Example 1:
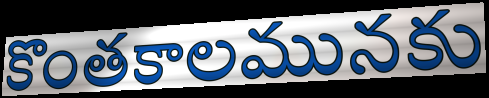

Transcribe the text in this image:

కొంతకాలమునకు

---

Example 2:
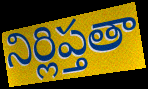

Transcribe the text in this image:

నిర్లిప్తతా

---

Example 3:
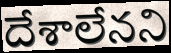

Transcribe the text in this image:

దేశాలేనని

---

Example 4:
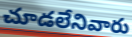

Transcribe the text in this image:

చూడలేనివారు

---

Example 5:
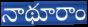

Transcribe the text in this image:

నాథూరాం